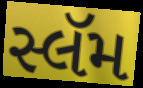
સ્લૅમ